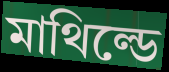
মাথিল্ডে